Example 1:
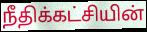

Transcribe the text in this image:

நீதிக்கட்சியின்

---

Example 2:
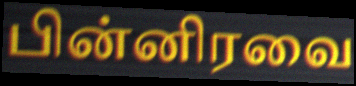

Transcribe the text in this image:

பின்னிரவை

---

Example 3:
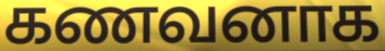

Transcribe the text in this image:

கணவனாக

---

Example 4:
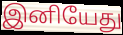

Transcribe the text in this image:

இனியேது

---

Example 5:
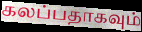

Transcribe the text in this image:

கலப்பதாகவும்